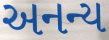
અનન્ય